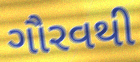
ગૌરવથી